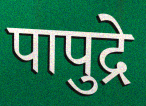
पापुद्रे